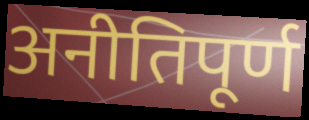
अनीतिपूर्ण